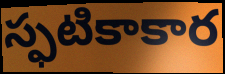
స్ఫటికాకార